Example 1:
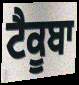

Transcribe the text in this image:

ਟੈਕੂਬਾ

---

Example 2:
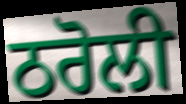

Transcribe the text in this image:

ਠਰੋਲੀ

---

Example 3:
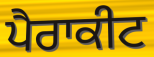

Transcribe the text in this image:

ਪੈਰਾਕੀਟ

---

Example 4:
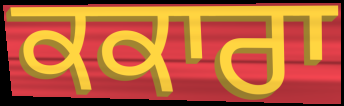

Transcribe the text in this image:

ਕਕਾਰਾ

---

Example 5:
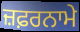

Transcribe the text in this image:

ਜ਼ਫ਼ਰਨਾਮੇ